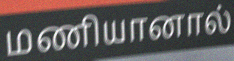
மணியானால்